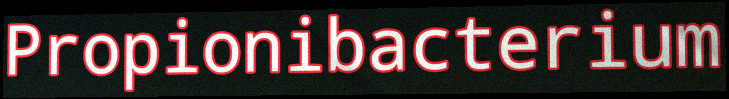
Propionibacterium